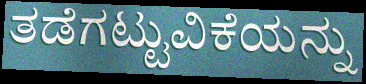
ತಡೆಗಟ್ಟುವಿಕೆಯನ್ನು